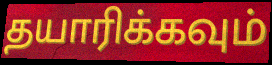
தயாரிக்கவும்